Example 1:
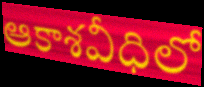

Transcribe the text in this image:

ఆకాశవీధిలో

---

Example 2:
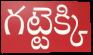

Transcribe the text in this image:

గట్టెక్కి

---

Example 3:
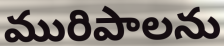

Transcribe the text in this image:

మురిపాలను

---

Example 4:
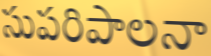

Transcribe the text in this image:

సుపరిపాలనా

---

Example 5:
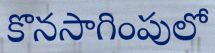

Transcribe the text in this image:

కొనసాగింపులో